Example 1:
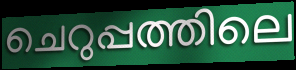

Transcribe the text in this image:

ചെറുപ്പത്തിലെ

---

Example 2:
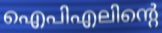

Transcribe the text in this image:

ഐപിഎലിന്റെ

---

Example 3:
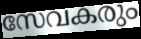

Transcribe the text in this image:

സേവകരും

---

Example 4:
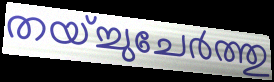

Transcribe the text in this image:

തയ്ച്ചുചേർത്തു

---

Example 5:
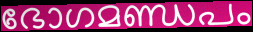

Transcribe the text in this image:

ഭോഗമണ്ഡപം